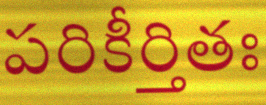
పరికీర్తితః